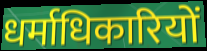
धर्माधिकारियों